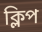
ক্লিপ